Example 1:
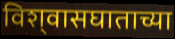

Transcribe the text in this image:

विश्वासघाताच्या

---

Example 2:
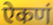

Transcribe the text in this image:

ऐकणं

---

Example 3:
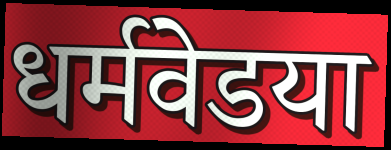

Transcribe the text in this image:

धर्मवेडया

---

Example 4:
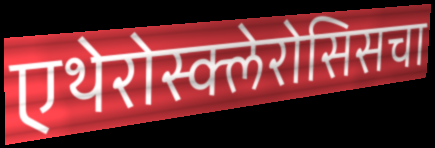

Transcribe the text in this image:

एथेरोस्क्लेरोसिसचा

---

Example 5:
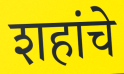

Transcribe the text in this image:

शहांचे